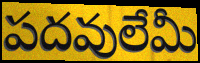
పదవులేమీ